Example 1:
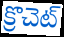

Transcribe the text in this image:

క్రొచెట్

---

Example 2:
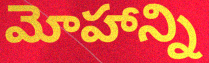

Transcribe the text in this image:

మోహాన్ని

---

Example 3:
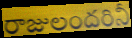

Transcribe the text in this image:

రాజులందరినీ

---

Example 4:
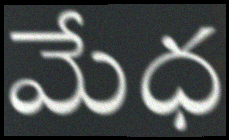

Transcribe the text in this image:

మేధ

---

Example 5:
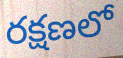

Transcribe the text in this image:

రక్షణలో